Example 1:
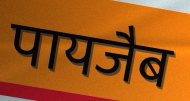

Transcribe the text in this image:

पायजैब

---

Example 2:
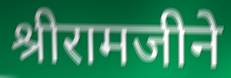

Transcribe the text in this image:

श्रीरामजीने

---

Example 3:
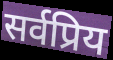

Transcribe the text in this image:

सर्वप्रिय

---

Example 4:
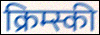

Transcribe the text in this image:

क्रिम्स्की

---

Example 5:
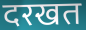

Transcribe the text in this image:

दरखत